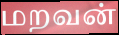
மறவன்